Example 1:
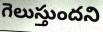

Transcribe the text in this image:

గెలుస్తుందని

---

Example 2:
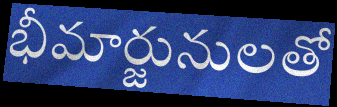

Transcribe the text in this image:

భీమార్జునులతో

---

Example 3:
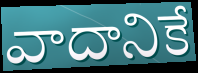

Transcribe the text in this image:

వాదానికే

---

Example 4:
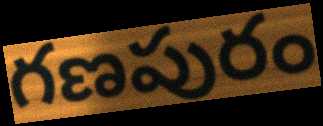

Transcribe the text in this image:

గణపురం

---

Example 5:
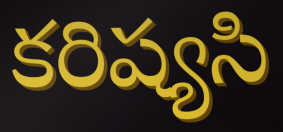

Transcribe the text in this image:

కరిష్యసి